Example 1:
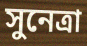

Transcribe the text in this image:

সুনেত্রা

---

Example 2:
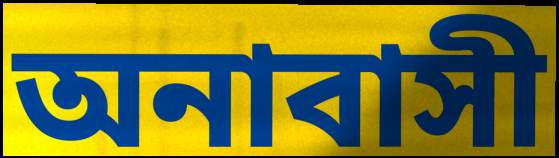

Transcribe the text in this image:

অনাবাসী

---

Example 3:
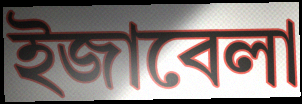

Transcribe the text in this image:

ইজাবেলা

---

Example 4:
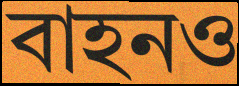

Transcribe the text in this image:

বাহনও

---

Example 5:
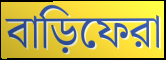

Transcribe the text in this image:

বাড়িফেরা